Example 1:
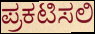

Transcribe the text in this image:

ಪ್ರಕಟಿಸಲಿ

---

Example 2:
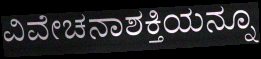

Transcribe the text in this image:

ವಿವೇಚನಾಶಕ್ತಿಯನ್ನೂ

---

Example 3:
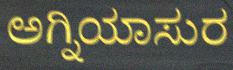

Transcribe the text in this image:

ಅಗ್ನಿಯಾಸುರ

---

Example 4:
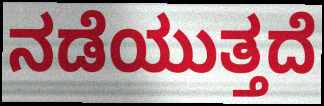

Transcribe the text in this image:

ನಡೆಯುತ್ತದೆ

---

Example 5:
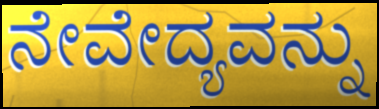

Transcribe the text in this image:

ನೇವೇದ್ಯವನ್ನು